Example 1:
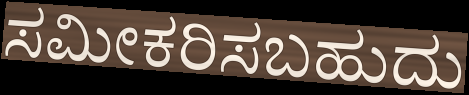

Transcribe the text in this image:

ಸಮೀಕರಿಸಬಹುದು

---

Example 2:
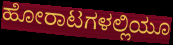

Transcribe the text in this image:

ಹೋರಾಟಗಳಲ್ಲಿಯೂ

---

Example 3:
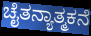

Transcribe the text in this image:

ಚೈತನ್ಯಾತ್ಮಕನೆ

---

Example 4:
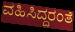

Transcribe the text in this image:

ವಹಿಸಿದ್ದರಂತೆ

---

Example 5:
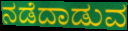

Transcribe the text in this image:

ನಡೆದಾಡುವ